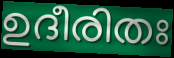
ഉദീരിതഃ